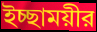
ইচ্ছাময়ীর